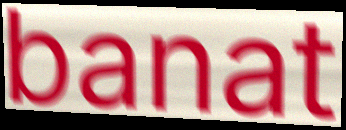
banat